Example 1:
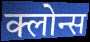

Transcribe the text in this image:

क्लोन्स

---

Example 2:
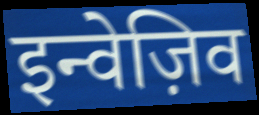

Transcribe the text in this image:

इन्वेज़िव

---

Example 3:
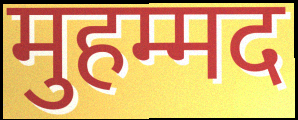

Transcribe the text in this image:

मुहम्‍मद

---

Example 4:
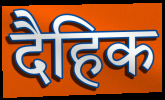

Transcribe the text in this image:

दैहिक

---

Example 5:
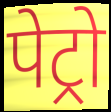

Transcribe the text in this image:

पेट्रो